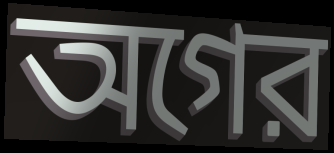
অগের